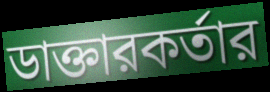
ডাক্তারকর্তার